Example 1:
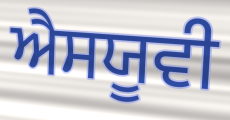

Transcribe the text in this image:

ਐਸਯੂਵੀ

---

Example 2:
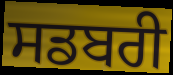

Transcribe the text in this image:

ਸਡਬਰੀ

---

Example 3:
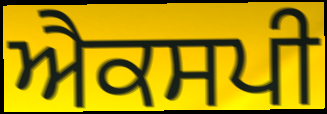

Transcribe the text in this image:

ਐਕਸਪੀ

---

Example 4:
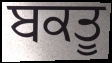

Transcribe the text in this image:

ਬਕਤੂ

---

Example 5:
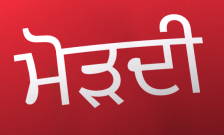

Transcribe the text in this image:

ਮੋੜਦੀ